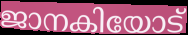
ജാനകിയോട്